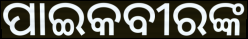
ପାଇକବୀରଙ୍କ